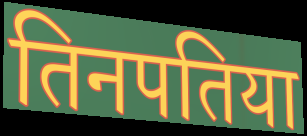
तिनपतिया